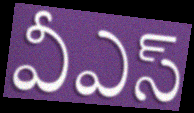
వీఎస్